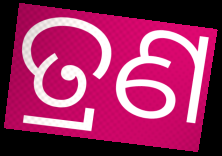
ତ୍ରଣ